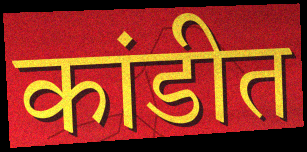
कांडीत